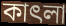
কাৎলা